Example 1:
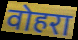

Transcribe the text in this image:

वोहरा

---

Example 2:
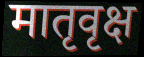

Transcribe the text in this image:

मातृवृक्ष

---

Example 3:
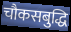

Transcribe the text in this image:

चौकसबुद्धि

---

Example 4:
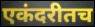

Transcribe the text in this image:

एकंदरीतच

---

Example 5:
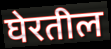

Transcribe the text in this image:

घेरतील